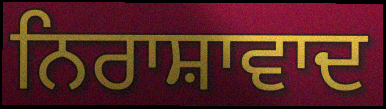
ਨਿਰਾਸ਼ਾਵਾਦ